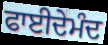
ਫਾਈਦੇਮੰਦ